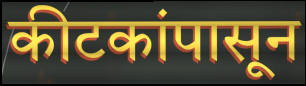
कीटकांपासून